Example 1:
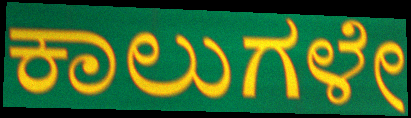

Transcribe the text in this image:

ಕಾಲುಗಳೇ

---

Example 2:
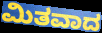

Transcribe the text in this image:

ಮಿತವಾದ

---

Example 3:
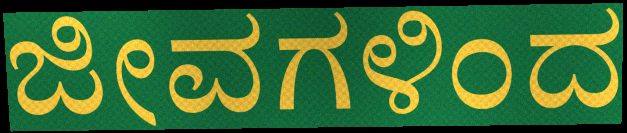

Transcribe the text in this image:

ಜೀವಗಳಿಂದ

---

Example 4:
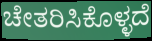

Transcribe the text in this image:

ಚೇತರಿಸಿಕೊಳ್ಳದೆ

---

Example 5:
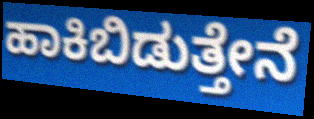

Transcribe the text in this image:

ಹಾಕಿಬಿಡುತ್ತೇನೆ